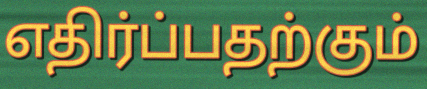
எதிர்ப்பதற்கும்